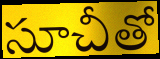
సూచీతో